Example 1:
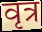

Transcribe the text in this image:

वृत्र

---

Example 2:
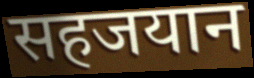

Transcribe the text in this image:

सहजयान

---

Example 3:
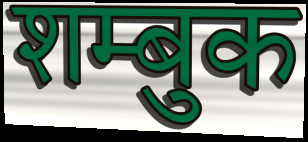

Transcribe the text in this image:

शम्बुक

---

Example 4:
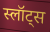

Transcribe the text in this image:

स्लॉट्स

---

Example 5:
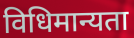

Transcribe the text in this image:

विधिमान्यता